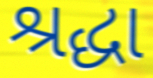
શ્રદ્ધા